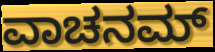
ವಾಚನಮ್